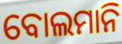
ବୋଲମାନି